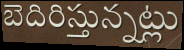
బెదిరిస్తున్నట్లు